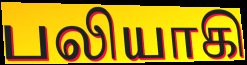
பலியாகி